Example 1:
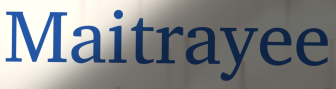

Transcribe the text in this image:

Maitrayee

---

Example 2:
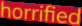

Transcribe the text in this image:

horrified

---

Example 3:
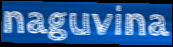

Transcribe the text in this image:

naguvina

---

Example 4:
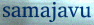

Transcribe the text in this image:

samajavu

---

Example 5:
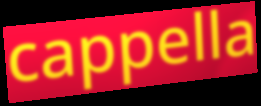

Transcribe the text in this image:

cappella